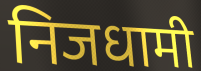
निजधामी